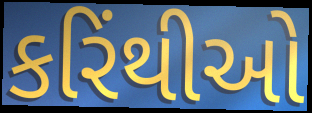
કરિંથીઓ